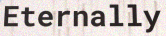
Eternally